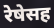
रेषेसह